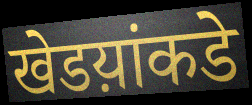
खेडय़ांकडे